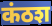
कंठश